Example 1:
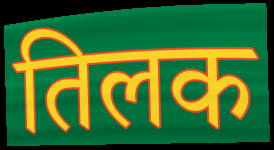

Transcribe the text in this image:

तिलक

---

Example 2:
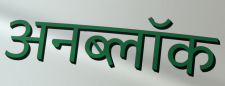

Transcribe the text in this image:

अनब्लॉक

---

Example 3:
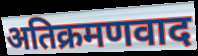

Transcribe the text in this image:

अतिक्रमणवाद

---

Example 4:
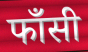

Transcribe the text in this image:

फाँसी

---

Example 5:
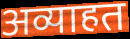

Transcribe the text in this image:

अव्याहत